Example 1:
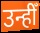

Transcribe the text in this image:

उन्हीँ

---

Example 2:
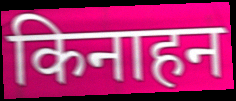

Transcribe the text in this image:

किनाहन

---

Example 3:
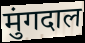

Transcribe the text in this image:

मुंगदाल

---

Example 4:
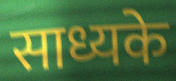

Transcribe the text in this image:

साध्यके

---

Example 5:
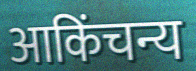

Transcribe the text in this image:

आकिंचन्य